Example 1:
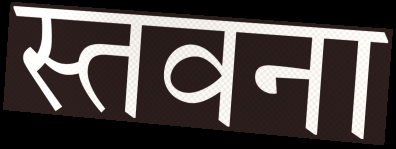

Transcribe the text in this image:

स्तवना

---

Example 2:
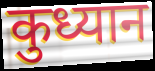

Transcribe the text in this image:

कुध्यान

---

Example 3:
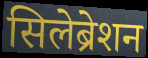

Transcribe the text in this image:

सिलेब्रेशन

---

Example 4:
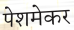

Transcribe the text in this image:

पेशमेकर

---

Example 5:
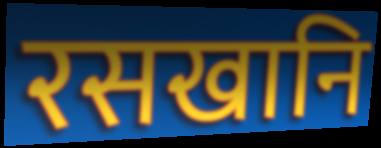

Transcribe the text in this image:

रसखानि